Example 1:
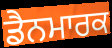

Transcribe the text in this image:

ਡੈਨਮਾਰਕ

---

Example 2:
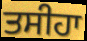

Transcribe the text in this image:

ਤਸੀਹਾ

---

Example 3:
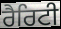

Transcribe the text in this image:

ਰੈਰਿਟੀ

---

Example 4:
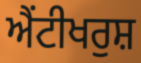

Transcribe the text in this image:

ਐਂਟੀਖਰੁਸ਼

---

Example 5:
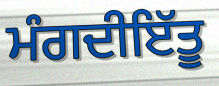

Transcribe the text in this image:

ਮੰਗਦੀਇੱਤੂ